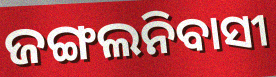
ଜଙ୍ଗଲନିବାସୀ